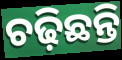
ଚଢ଼ିଛନ୍ତି